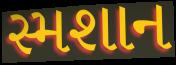
સ્મશાન